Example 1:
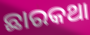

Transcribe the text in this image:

ଛାରକଥା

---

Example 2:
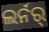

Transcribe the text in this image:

ଲର୍ନର୍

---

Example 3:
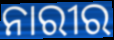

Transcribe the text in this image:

ନାରୀର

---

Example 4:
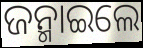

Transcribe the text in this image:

ଜନ୍ମାଇଲେ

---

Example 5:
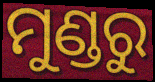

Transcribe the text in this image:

ମୁଣ୍ଡରୁ